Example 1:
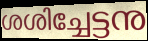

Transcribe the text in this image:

ശശിച്ചേട്ടനു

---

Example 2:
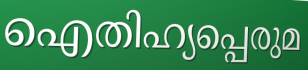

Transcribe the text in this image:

ഐതിഹ്യപ്പെരുമ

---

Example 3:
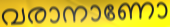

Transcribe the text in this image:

വരാനാണോ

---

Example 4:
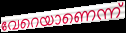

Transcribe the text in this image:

വേറെയാണെന്ന്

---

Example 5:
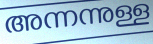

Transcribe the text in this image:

അന്നന്നുള്ള